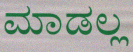
ಮಾಡಲ್ಲ